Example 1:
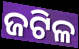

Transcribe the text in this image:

ଜଟିଳ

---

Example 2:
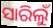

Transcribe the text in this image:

ସାରିଲୁଁ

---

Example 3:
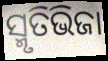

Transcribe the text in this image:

ସ୍ମୃତିଭିଜା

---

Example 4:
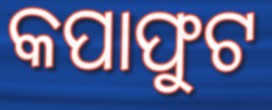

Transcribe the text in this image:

କପାଫୁଟ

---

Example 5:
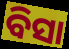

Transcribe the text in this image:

ବିସା